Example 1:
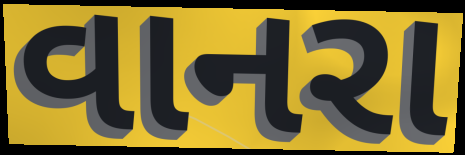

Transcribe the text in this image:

વાનરા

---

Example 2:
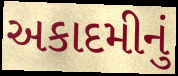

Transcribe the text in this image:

અકાદમીનું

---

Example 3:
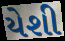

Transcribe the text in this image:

યેશી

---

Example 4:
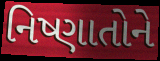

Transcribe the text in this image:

નિષ્ણાતોને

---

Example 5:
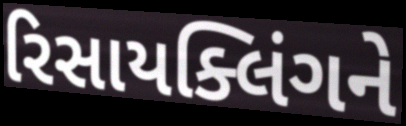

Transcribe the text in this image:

રિસાયક્લિંગને